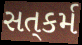
સત્‌કર્મ